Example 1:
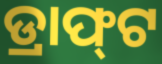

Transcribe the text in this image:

ଡ୍ରାଫ୍‍ଟ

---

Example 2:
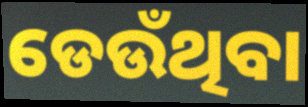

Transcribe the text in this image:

ଡେଉଁଥିବା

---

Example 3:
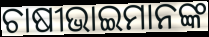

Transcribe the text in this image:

ଚାଷୀଭାଇମାନଙ୍କ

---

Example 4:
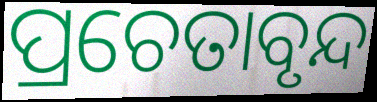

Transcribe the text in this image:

ପ୍ରଚେତାବୃନ୍ଦ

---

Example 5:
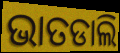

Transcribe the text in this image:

ଭାତଡାଲି